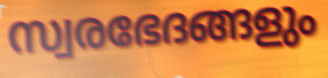
സ്വരഭേദങ്ങളും